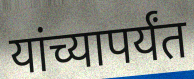
यांच्यापर्यंत